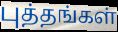
புத்தங்கள்